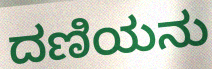
ದಣಿಯನು